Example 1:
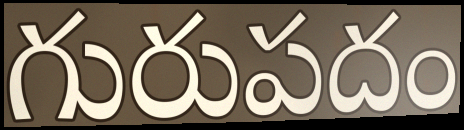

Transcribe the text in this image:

గురుపదం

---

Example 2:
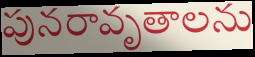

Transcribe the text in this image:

పునరావృతాలను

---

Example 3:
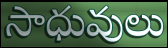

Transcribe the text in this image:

సాధువులు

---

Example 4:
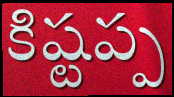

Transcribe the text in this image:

కిష్టప్ప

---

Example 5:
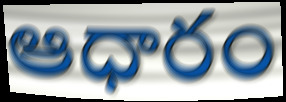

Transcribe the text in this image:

ఆధారం